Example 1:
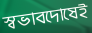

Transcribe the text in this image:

স্বভাবদোষেই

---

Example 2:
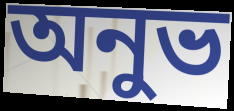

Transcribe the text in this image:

অনুভ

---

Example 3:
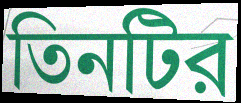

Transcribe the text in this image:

তিনটির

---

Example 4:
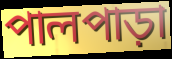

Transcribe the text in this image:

পালপাড়া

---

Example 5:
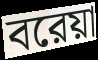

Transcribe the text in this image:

বরেয়া